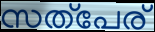
സത്പേര്